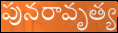
పునరావృత్య